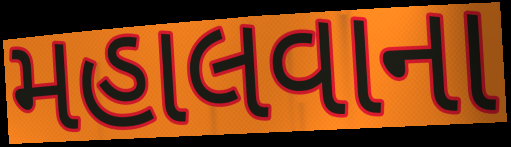
મહાલવાના